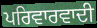
ਪਰਿਵਾਰਵਾਦੀ